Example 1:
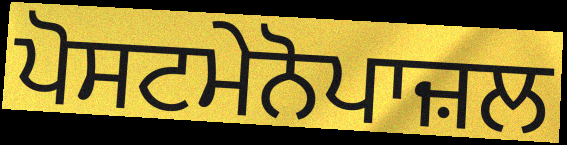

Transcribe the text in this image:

ਪੋਸਟਮੇਨੋਪਾਜ਼ਲ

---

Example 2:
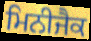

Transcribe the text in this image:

ਮਿਨੀਜੈਕ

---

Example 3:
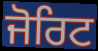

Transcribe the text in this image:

ਜੋਰਿਟ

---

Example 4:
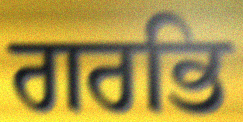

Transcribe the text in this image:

ਗਰਭਿ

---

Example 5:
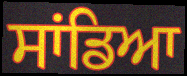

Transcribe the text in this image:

ਸਾਂਡਿਆ